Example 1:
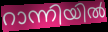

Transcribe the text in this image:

റാന്നിയിൽ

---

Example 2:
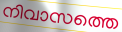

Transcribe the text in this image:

നിവാസത്തെ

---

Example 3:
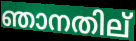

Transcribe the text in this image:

ഞാനതില്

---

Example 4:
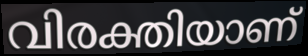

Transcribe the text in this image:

വിരക്തിയാണ്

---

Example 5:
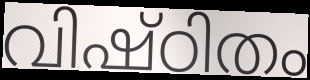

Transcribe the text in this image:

വിഷ്ഠിതം